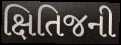
ક્ષિતિજની